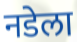
नडेला